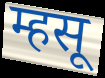
म्हसू